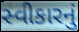
સ્વીકારનું